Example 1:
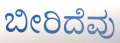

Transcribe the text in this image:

ಬೀರಿದೆವು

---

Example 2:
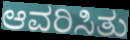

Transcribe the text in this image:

ಆವರಿಸಿತು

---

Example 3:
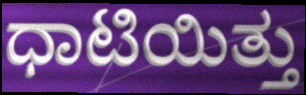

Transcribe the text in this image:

ಧಾಟಿಯಿತ್ತು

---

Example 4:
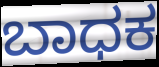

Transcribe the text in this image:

ಬಾಧಕ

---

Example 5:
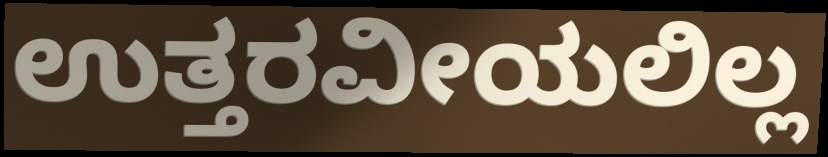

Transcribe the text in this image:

ಉತ್ತರವೀಯಲಿಲ್ಲ